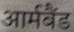
आर्मबैंड